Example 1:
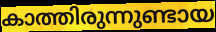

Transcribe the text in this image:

കാത്തിരുന്നുണ്ടായ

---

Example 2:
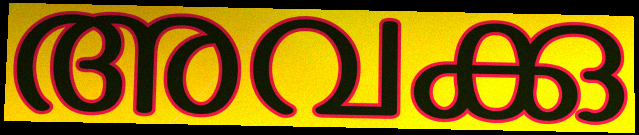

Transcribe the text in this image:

അവക്കു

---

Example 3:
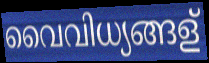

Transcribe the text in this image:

വൈവിധ്യങ്ങള്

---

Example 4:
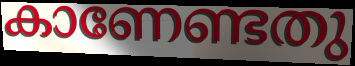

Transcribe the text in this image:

കാണേണ്ടതു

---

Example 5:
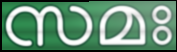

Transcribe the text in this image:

സമഃ